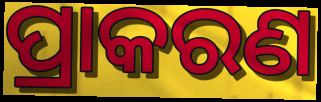
ପ୍ରାକରଣ